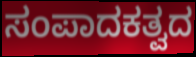
ಸಂಪಾದಕತ್ವದ